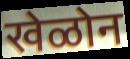
खेळोन